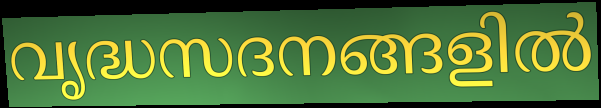
വൃദ്ധസദനങ്ങളിൽ